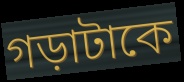
গড়াটাকে